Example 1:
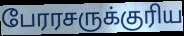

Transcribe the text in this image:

பேரரசருக்குரிய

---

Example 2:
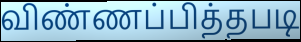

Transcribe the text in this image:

விண்ணப்பித்தபடி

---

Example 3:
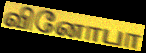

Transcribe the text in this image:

வினோபா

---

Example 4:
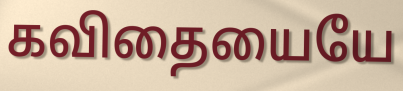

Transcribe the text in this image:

கவிதையையே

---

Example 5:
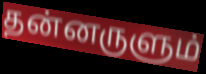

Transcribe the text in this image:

தன்னருளும்